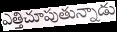
ఎత్తిచూపుతున్నాడు